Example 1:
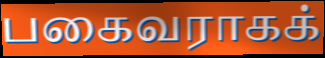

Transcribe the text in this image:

பகைவராகக்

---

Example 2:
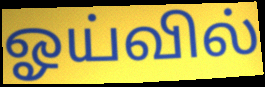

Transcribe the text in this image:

ஓய்வில்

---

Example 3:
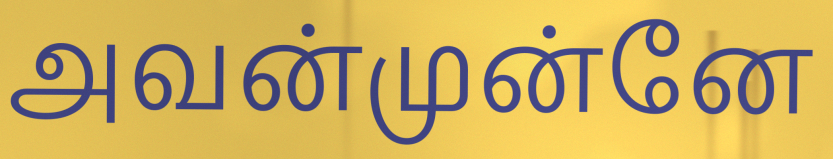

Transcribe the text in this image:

அவன்முன்னே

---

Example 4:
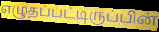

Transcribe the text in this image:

எழுதப்பட்டிருப்பின்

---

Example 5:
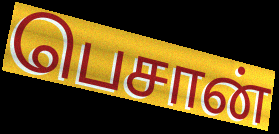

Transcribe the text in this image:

பெசான்